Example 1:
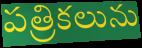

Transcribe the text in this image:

పత్రికలును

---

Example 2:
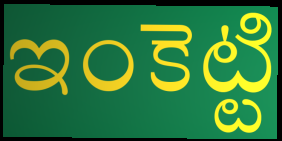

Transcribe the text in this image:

ఇంకెట్టి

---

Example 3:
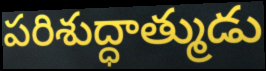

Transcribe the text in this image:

పరిశుద్ధాత్ముడు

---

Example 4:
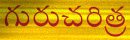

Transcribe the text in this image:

గురుచరిత్ర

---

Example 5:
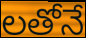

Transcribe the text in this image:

లతోనే